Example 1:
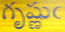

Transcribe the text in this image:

గృష్ణుఁ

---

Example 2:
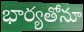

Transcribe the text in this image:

భార్యతోనూ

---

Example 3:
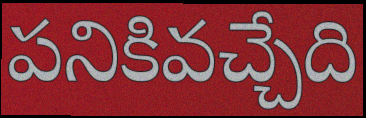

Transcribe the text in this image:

పనికివచ్చేది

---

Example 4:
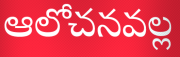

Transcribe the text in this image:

ఆలోచనవల్ల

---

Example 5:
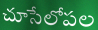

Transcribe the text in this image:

చూసేలోపల